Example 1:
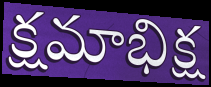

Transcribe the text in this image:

క్షమాభిక్ష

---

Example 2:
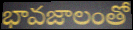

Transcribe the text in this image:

భావజాలంతో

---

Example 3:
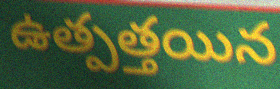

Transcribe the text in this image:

ఉత్పత్తయిన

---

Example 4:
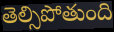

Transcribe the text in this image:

తెల్సిపోతుంది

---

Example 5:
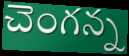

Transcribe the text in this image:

చెంగన్న